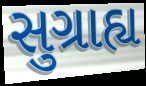
સુગ્રાહ્ય